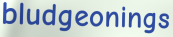
bludgeonings